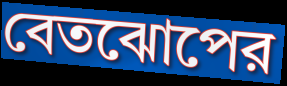
বেতঝোপের